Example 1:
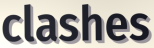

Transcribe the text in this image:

clashes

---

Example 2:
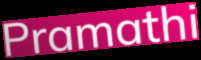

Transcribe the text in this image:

Pramathi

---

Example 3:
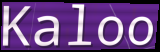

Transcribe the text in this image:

Kaloo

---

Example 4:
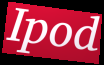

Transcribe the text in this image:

Ipod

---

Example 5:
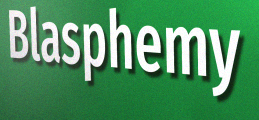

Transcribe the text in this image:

Blasphemy